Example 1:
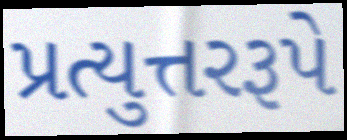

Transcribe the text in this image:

પ્રત્યુત્તરરૂપે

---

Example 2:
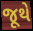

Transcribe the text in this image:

જૂથે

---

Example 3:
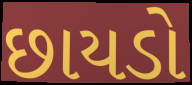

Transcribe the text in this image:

છાયડો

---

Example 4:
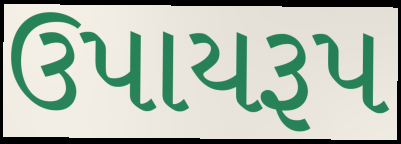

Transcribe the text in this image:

ઉપાયરૂપ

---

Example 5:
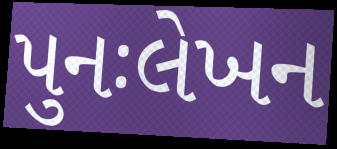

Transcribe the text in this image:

પુનઃલેખન